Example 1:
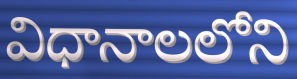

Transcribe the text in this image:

విధానాలలోని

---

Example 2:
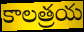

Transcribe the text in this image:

కాలత్రయ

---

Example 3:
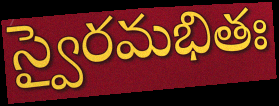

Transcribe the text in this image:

స్వైరమభితః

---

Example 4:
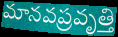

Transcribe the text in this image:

మానవప్రవృత్తి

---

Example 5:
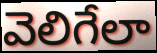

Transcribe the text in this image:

వెలిగేలా